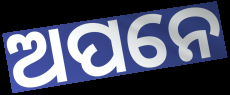
ଅପନେ